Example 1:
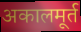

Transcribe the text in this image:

अकालमूर्त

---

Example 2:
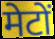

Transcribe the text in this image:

मेटों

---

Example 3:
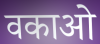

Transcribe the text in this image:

वकाओ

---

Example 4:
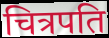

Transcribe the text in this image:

चित्रपति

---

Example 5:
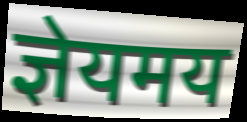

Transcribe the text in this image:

ज्ञेयमय